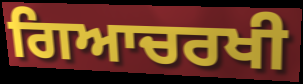
ਗਿਆਚਰਖੀ